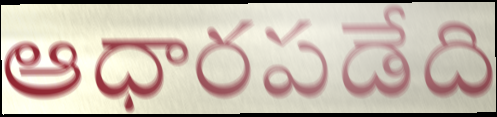
ఆధారపడేది